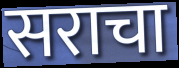
सराचा